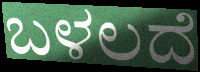
ಬಳಲದೆ